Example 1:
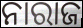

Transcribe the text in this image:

ନାରାଜ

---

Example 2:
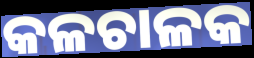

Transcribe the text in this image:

କଳଚାଳକ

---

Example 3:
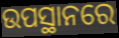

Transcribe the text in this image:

ଉପସ୍ଥାନରେ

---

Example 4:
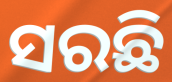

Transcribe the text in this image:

ସରଛି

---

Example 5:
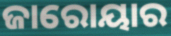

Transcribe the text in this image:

ଜାରୋୟାର